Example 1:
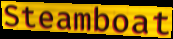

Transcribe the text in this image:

Steamboat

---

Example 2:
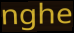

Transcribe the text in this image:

nghe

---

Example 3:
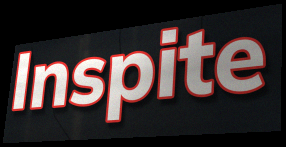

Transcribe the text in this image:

Inspite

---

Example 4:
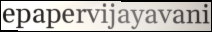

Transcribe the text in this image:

epapervijayavani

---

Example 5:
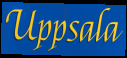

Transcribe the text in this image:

Uppsala